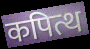
कपित्थ